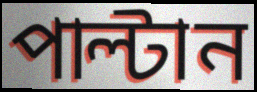
পাল্টান